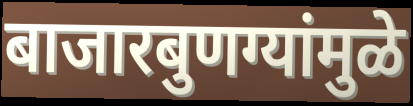
बाजारबुणग्यांमुळे